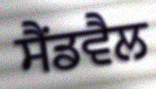
ਸੈਂਡਵੈਲ